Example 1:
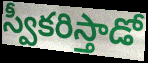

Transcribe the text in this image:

స్వీకరిస్తాడో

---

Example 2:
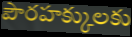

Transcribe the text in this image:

పౌరహక్కులకు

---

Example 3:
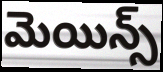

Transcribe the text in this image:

మెయిన్స్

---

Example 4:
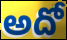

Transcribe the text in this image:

అదో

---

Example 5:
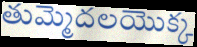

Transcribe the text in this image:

తుమ్మెదలయొక్క